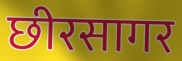
छीरसागर